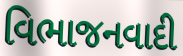
વિભાજનવાદી